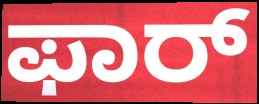
ಫಾರ್